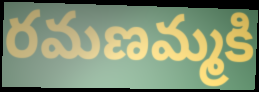
రమణమ్మకి